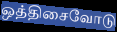
ஒத்திசைவோடு